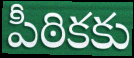
పీఠికకు